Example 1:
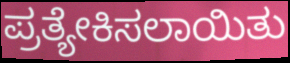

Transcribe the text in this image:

ಪ್ರತ್ಯೇಕಿಸಲಾಯಿತು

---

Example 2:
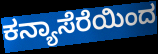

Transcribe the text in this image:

ಕನ್ಯಾಸೆರೆಯಿಂದ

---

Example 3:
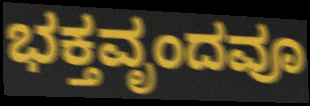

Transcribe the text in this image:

ಭಕ್ತವೃಂದವೂ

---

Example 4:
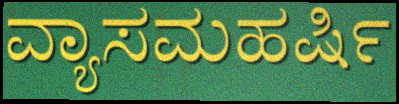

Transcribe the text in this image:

ವ್ಯಾಸಮಹರ್ಷಿ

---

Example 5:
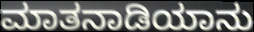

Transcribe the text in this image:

ಮಾತನಾಡಿಯಾನು